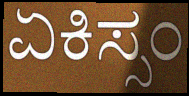
ಏಕಿಸ್ಸಂ